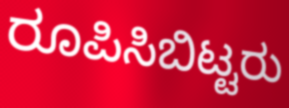
ರೂಪಿಸಿಬಿಟ್ಟರು